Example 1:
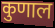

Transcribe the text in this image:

कुणाल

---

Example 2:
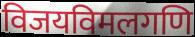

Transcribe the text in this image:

विजयविमलगणि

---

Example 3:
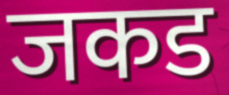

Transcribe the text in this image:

जकड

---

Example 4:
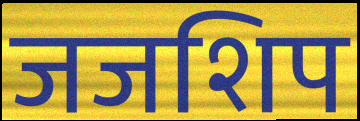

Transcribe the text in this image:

जजशिप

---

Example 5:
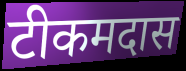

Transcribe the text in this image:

टीकमदास